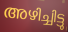
അഴിച്ചിട്ടു